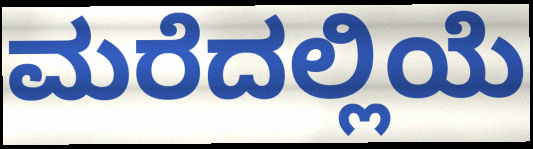
ಮರೆದಲ್ಲಿಯೆ